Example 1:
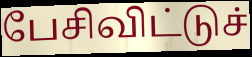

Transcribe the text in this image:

பேசிவிட்டுச்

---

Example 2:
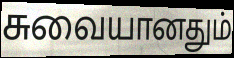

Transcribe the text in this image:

சுவையானதும்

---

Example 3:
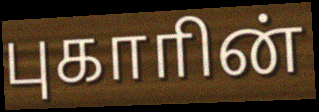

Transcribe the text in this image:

புகாரின்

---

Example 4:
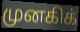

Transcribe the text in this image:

முனகிக்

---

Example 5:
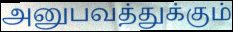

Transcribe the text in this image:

அனுபவத்துக்கும்